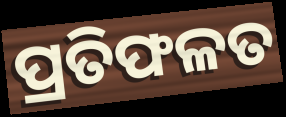
ପ୍ରତିଫଳତ